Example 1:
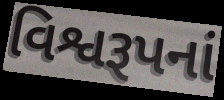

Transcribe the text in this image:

વિશ્વરૂપનાં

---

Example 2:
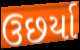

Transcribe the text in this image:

ઉછર્યા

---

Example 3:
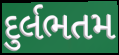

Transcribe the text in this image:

દુર્લભતમ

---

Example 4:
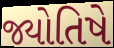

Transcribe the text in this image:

જ્યોતિષે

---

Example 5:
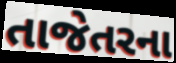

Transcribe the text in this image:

તાજેતરના